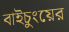
বাইচুংয়ের